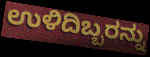
ಉಳಿದಿಬ್ಬರನ್ನು